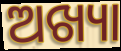
ଅଖ୍ୟା